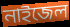
নাইজেল